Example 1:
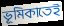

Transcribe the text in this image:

ভূমিকাতেই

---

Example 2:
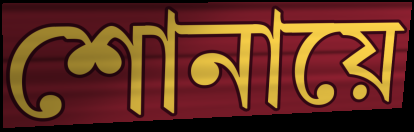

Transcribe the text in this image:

শোনায়ে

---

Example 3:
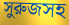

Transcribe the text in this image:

সুরুজসহ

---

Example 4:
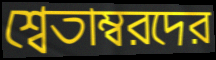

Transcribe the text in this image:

শ্বেতাম্বরদের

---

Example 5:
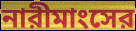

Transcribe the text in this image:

নারীমাংসের